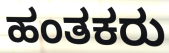
ಹಂತಕರು